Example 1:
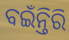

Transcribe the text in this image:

ବଇଁନ୍ତିରି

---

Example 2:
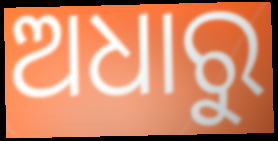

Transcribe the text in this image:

ଅଧାରୁ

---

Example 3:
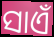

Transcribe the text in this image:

ସାଏଁ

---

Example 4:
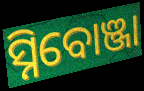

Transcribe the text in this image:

ସ୍ନିବୋଞ୍ଜା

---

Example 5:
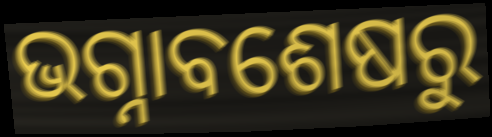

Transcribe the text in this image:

ଭଗ୍ନାବଶେଷରୁ